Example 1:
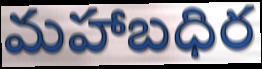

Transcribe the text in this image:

మహాబధిర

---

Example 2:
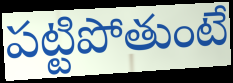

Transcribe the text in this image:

పట్టిపోతుంటే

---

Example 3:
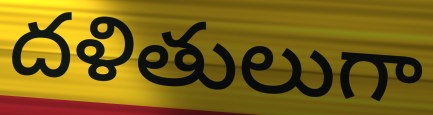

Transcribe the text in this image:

దళితులుగా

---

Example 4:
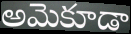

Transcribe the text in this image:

అమెకూడా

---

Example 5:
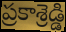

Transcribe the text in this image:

ప్రకాశ్రెడ్డి